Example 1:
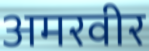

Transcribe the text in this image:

अमरवीर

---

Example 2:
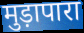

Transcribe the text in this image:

मुड़ापारा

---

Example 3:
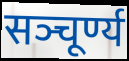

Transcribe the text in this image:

सञ्चूर्ण्य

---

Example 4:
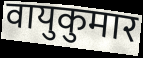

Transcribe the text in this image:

वायुकुमार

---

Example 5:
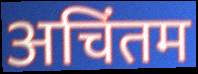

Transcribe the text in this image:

अचिंतम